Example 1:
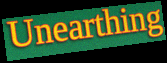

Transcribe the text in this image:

Unearthing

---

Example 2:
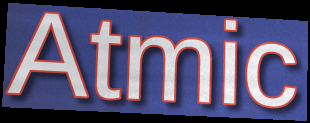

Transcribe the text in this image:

Atmic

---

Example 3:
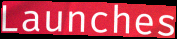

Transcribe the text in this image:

Launches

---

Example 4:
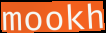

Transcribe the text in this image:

mookh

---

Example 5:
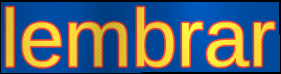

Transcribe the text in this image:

lembrar